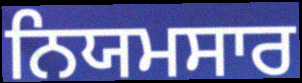
ਨਿਯਮਸਾਰ